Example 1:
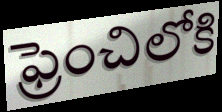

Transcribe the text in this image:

ఫ్రెంచిలోకి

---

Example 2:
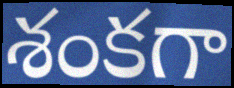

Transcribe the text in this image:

శంకగా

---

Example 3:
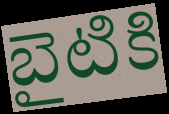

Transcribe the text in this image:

బైటికి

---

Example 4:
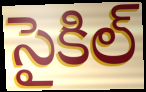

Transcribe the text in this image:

సైకిల్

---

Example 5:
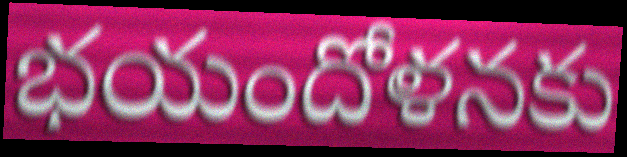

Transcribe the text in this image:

భయందోళనకు